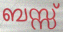
ബസ്സ്